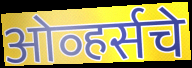
ओव्हर्सचे